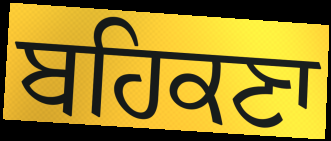
ਬਹਿਕਣਾ